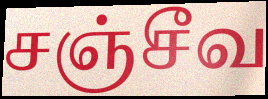
சஞ்சீவ